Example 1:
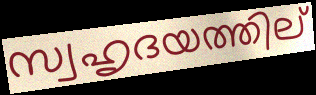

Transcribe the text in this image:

സ്വഹൃദയത്തില്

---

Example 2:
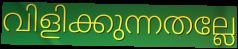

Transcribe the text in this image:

വിളിക്കുന്നതല്ലേ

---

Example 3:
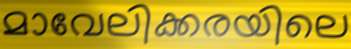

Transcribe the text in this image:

മാവേലിക്കരയിലെ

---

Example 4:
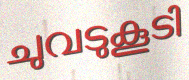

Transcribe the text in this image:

ചുവടുകൂടി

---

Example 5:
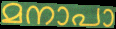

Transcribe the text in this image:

മനാപാ